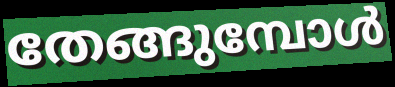
തേങ്ങുമ്പോൾ